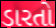
ડારતો